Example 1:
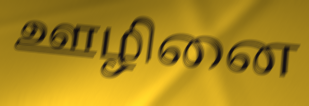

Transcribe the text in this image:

ஊழினை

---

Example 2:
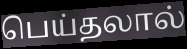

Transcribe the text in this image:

பெய்தலால்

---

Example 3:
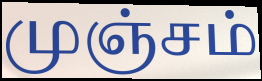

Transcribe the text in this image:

முஞ்சம்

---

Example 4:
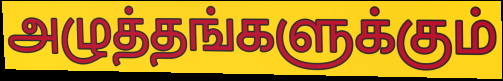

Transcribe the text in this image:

அழுத்தங்களுக்கும்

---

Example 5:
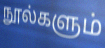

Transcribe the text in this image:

நூல்களும்